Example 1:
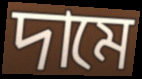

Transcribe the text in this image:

দামে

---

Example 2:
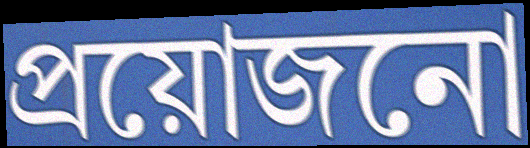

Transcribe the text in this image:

প্ৰয়োজনো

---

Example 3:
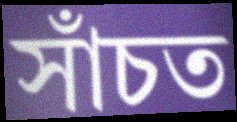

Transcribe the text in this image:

সাঁচত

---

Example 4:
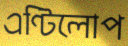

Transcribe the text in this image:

এণ্টিলোপ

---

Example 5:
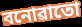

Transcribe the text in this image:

বনোৱাতো